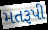
મતરૂપી